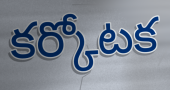
కర్కోటక